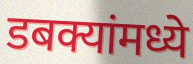
डबक्यांमध्ये